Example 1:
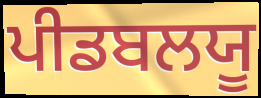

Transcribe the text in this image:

ਪੀਡਬਲਯੂ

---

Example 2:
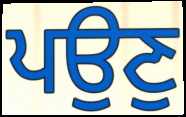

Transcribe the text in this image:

ਪਉਣੁ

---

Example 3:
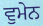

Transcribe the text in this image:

ਵੁਮੇਨ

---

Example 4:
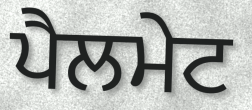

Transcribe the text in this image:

ਪੈਲਮੇਟ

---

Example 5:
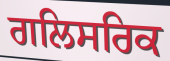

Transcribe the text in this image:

ਗਲਿਸਰਿਕ